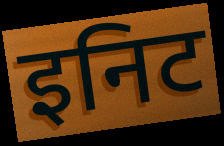
इनिट